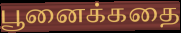
பூனைக்கதை